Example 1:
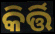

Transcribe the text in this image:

କିର୍ତ୍ତି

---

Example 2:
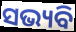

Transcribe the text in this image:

ସଭ୍ୟବି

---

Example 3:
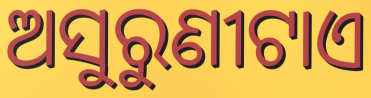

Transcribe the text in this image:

ଅସୁରୁଣୀଟାଏ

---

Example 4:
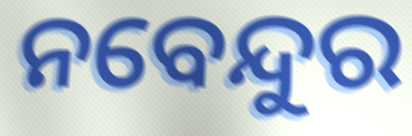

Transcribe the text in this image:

ନବେନ୍ଦୁର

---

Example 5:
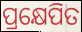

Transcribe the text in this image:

ପ୍ରକ୍ଷେପିତ